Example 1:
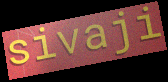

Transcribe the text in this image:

sivaji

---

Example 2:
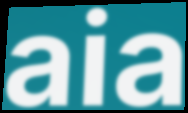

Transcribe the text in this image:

aia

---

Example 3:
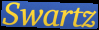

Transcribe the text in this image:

Swartz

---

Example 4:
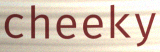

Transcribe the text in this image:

cheeky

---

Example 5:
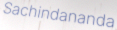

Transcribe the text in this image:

Sachindananda